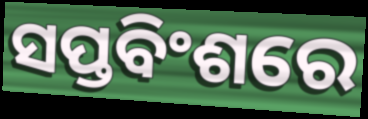
ସପ୍ତବିଂଶରେ